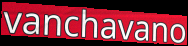
vanchavano